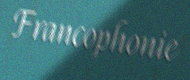
Francophonie